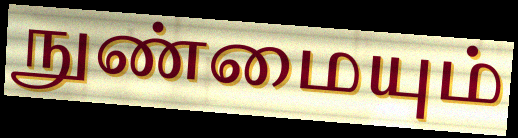
நுண்மையும்